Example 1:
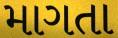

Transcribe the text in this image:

માગતા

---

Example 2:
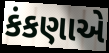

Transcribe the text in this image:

કંકણાએ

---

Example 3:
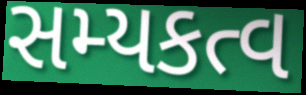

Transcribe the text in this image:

સમ્યકત્વ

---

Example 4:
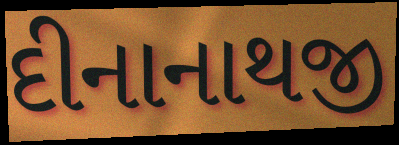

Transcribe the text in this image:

દીનાનાથજી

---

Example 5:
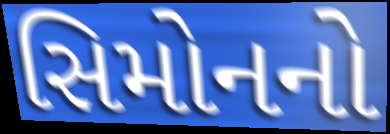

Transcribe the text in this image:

સિમોનનો